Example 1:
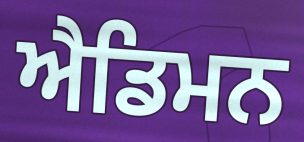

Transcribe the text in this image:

ਐਡਿਮਨ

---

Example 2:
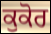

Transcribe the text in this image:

ਕੁਕੋਰ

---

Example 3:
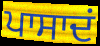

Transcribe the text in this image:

ਪਾਸਾਦਂ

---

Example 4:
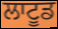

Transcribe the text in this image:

ਲਾਟੂਡ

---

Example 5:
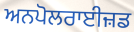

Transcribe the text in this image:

ਅਨਪੋਲਰਾਈਜ਼ਡ